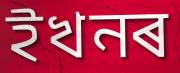
ইখনৰ